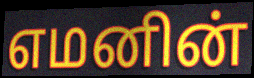
எமனின்